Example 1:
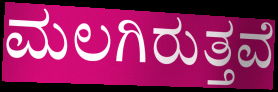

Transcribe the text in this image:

ಮಲಗಿರುತ್ತವೆ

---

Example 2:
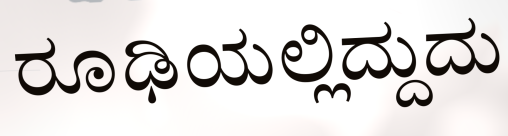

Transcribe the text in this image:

ರೂಢಿಯಲ್ಲಿದ್ದುದು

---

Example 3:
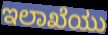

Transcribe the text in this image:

ಇಲಾಖೆಯು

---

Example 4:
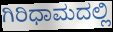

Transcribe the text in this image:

ಗಿರಿಧಾಮದಲ್ಲಿ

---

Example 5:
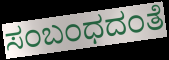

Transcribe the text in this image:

ಸಂಬಂಧದಂತೆ